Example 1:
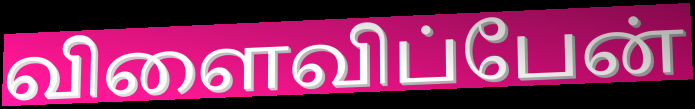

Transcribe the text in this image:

விளைவிப்பேன்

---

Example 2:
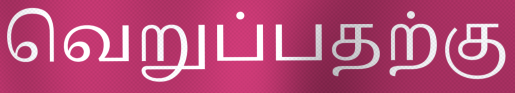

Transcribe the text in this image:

வெறுப்பதற்கு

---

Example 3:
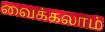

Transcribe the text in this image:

வைக்கலாம்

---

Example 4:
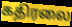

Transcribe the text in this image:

கதிரலை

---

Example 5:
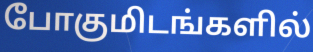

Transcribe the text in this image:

போகுமிடங்களில்